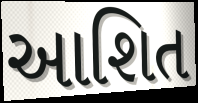
આશિત